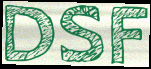
DSF